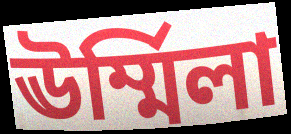
ঊর্ম্মিলা